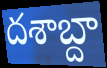
దశాబ్దా